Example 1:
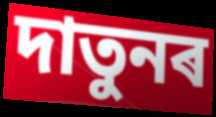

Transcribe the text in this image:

দাতুনৰ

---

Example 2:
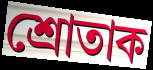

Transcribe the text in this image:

শ্ৰোতাক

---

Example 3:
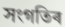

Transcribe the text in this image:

সংগতিৰ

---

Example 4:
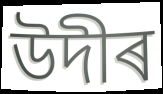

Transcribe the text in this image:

উদীৰ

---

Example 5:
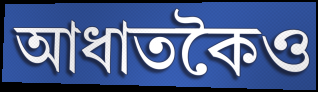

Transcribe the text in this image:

আধাতকৈও